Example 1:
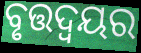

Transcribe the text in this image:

ବୃତ୍ତଦ୍ଵୟର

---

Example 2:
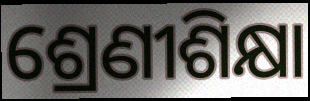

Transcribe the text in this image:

ଶ୍ରେଣୀଶିକ୍ଷା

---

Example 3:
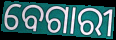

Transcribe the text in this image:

ବେଗାରୀ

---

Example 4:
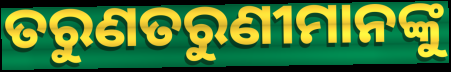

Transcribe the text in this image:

ତରୁଣତରୁଣୀମାନଙ୍କୁ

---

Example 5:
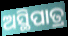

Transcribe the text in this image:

ଅସ୍ଥିପାତ୍ର